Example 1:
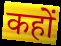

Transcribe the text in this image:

कहों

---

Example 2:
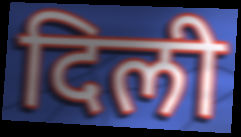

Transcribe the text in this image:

दिली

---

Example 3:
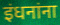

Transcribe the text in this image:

इंधनांना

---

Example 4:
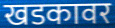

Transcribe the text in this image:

खडकावर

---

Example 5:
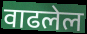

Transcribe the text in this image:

वाढलेल